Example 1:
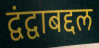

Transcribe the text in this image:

द्वंद्वाबद्दल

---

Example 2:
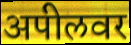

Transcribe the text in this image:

अपीलवर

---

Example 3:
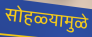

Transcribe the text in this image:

सोहळ्यामुळे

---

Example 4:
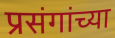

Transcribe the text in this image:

प्रसंगांच्या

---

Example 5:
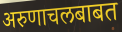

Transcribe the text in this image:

अरुणाचलबाबत